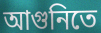
আগুনিতে